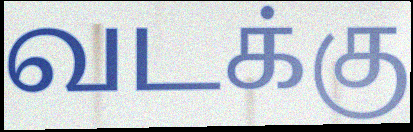
வடக்கு